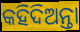
କହିଦିଅନ୍ତା